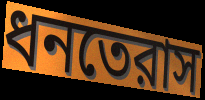
ধনতেরাস